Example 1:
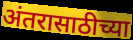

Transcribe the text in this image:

अंतरासाठीच्या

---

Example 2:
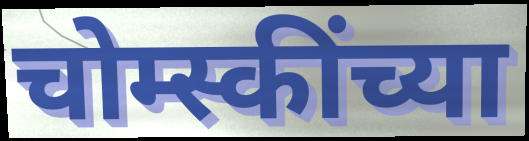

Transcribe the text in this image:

चोम्स्कींच्या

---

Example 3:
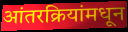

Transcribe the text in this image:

आंतरक्रियांमधून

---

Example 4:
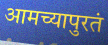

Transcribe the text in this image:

आमच्यापुरतं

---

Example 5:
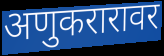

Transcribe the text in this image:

अणुकरारावर